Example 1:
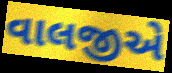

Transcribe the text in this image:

વાલજીએ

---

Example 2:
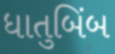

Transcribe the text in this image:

ધાતુબિંબ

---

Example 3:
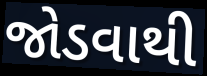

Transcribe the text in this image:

જોડવાથી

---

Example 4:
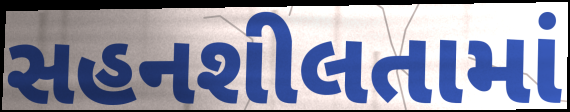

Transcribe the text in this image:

સહનશીલતામાં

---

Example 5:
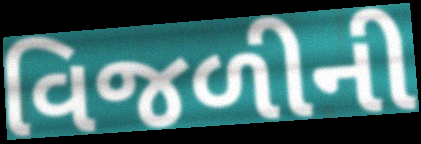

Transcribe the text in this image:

વિજળીની